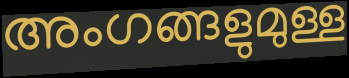
അംഗങ്ങളുമുള്ള